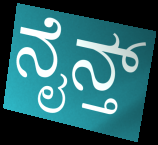
ನೈನ್ತ್